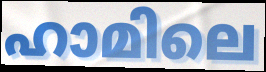
ഹാമിലെ